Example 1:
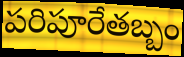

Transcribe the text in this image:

పరిపూరేతబ్బం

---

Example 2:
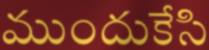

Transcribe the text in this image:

ముందుకేసి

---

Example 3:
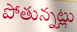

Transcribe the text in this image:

పోతున్నట్లు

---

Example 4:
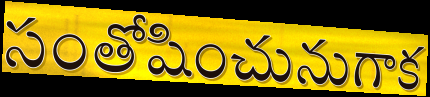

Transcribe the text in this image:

సంతోషించునుగాక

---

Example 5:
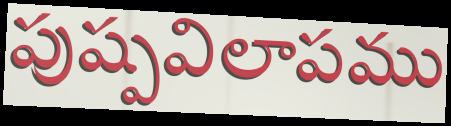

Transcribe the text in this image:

పుష్పవిలాపము